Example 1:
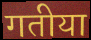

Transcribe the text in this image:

गतीया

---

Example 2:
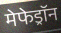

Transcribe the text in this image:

मेफेड्रॉन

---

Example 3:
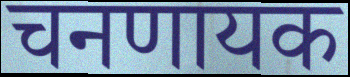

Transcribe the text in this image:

चनणायक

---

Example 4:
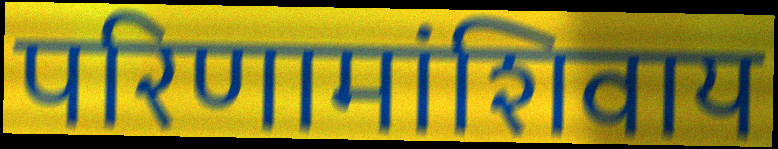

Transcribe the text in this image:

परिणामांशिवाय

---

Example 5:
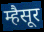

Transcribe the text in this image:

म्हैसूर